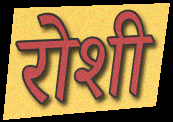
रोशी